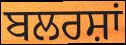
ਬਲਰਸ਼ਾਂ